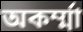
অকর্ম্মা